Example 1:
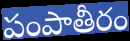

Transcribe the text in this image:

పంపాతీరం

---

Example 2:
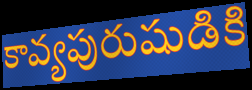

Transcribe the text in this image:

కావ్యపురుషుడికి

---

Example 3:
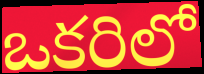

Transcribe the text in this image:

ఒకరిలో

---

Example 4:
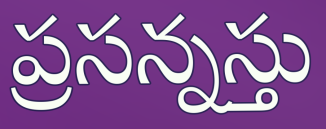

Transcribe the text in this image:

ప్రసన్నస్తు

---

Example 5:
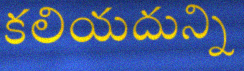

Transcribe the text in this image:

కలియదున్ని